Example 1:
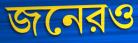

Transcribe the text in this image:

জনেরও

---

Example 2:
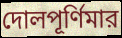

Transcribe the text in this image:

দোলপূর্ণিমার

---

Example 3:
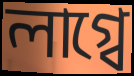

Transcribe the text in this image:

লাগ্বে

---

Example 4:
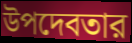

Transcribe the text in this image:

উপদেবতার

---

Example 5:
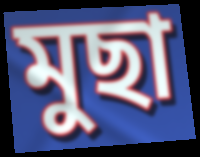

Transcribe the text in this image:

মুছা